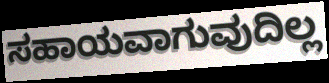
ಸಹಾಯವಾಗುವುದಿಲ್ಲ